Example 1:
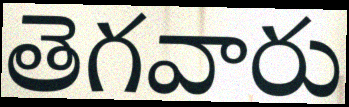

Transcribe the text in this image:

తెగవారు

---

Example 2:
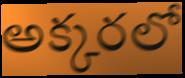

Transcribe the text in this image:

అక్కరలో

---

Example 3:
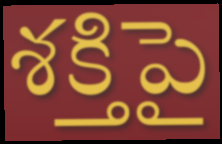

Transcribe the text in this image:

శక్తిపై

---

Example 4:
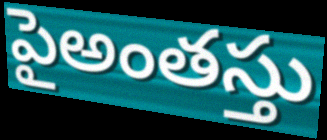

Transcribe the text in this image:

పైఅంతస్తు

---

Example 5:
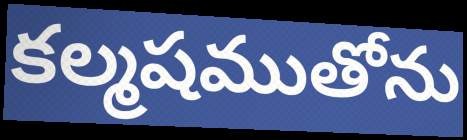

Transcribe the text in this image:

కల్మషముతోను